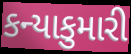
કન્યાકુમારી